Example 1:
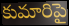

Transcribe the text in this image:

కుమారిపై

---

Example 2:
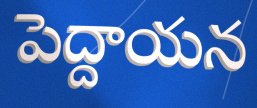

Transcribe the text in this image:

పెద్దాయన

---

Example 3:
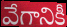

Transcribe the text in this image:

వేగానికీ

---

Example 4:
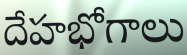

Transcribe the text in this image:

దేహభోగాలు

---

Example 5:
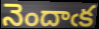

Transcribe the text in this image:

నెందాఁక